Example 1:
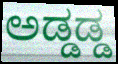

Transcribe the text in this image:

ಅಡ್ಡಡ್ಡ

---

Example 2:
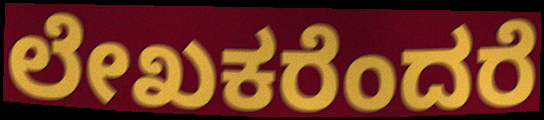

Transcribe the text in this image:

ಲೇಖಕರೆಂದರೆ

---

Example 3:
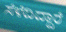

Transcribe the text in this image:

ಸೆಳೆದಿದ್ದಾರೆ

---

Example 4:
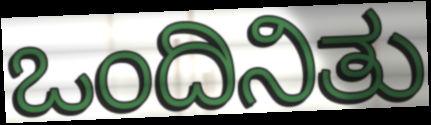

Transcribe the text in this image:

ಒಂದಿನಿತು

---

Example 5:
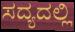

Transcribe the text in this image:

ಸದ್ಯದಲ್ಲಿ